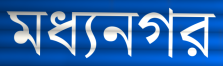
মধ্যনগর